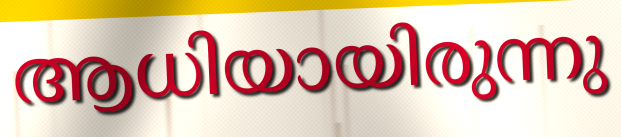
ആധിയായിരുന്നു